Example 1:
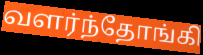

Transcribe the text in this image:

வளர்ந்தோங்கி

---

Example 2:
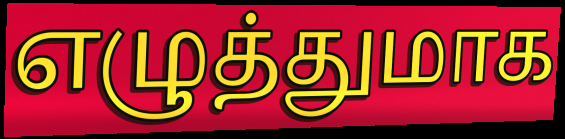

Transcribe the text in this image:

எழுத்துமாக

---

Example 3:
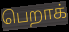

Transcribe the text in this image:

பெறாக்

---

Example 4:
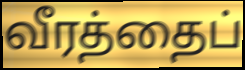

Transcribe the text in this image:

வீரத்தைப்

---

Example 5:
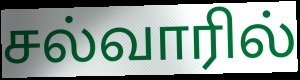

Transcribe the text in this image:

சல்வாரில்